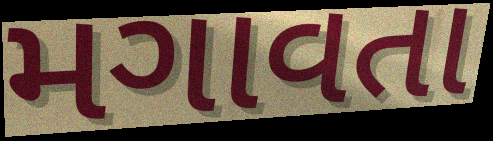
મગાવતા